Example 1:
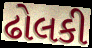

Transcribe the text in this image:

ઢોલકી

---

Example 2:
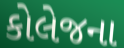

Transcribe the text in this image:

કોલેજના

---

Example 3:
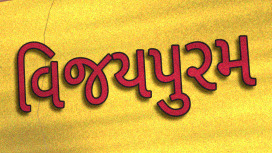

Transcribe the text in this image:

વિજયપુરમ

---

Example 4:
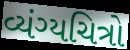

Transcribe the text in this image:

વ્યંગ્યચિત્રો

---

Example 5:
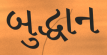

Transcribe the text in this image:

બુદ્ધાન